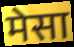
मेसा